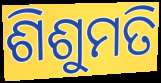
ଶିଶୁମତି